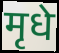
मृधे